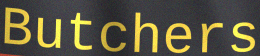
Butchers